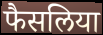
फैसलिया